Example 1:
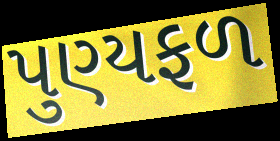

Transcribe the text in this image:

પુણ્યફળ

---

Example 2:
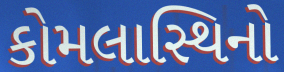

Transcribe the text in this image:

કોમલાસ્થિનો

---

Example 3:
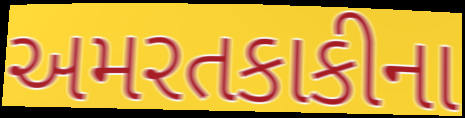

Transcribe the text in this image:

અમરતકાકીના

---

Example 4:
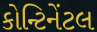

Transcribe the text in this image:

કોન્ટિનેંટલ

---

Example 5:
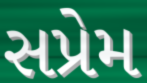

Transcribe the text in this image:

સપ્રેમ